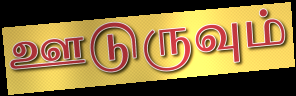
ஊடுருவும்